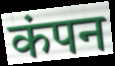
कंपन